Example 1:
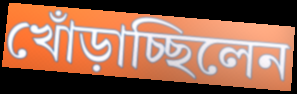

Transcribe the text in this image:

খোঁড়াচ্ছিলেন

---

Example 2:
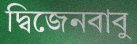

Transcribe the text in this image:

দ্বিজেনবাবু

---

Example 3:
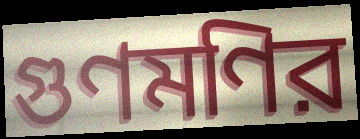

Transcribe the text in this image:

গুণমণির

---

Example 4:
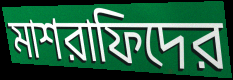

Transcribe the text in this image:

মাশরাফিদের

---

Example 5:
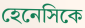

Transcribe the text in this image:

হেনেসিকে